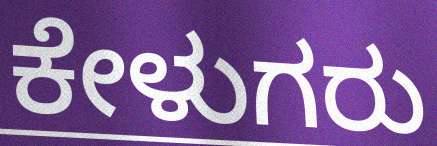
ಕೇಳುಗರು